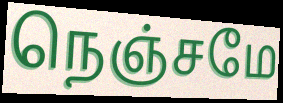
நெஞ்சமே